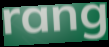
rang